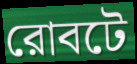
রোবটে